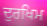
ਦੁਰਖਿਮ